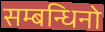
सम्बन्धिनो